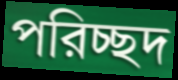
পরিচ্ছদ